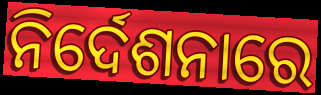
ନିର୍ଦେଶନାରେ